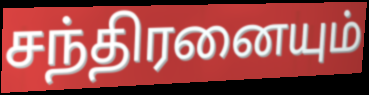
சந்திரனையும்